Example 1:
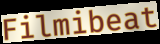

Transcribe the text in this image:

Filmibeat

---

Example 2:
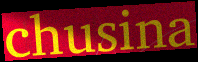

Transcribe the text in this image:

chusina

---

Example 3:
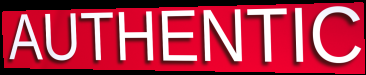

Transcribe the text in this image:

AUTHENTIC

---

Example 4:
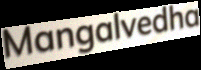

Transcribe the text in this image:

Mangalvedha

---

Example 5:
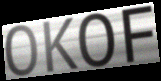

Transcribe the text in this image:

OKOF